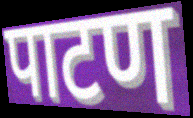
पाटण